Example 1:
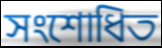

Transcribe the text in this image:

সংশোধিত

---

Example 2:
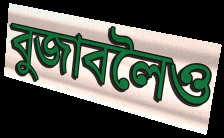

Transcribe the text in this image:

বুজাবলৈও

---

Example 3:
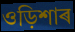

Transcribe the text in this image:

ওড়িশাৰ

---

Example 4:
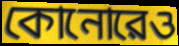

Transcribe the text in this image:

কোনোৱেও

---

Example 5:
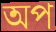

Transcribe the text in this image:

অপ